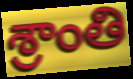
శ్రాంతి